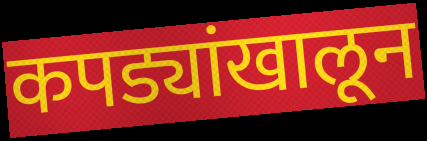
कपड्यांखालून